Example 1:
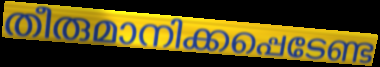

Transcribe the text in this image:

തീരുമാനിക്കപ്പെടേണ്ട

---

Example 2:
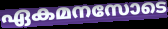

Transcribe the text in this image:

ഏകമനസോടെ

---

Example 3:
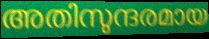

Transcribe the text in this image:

അതിസുന്ദരമായ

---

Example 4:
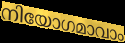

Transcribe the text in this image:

നിയോഗമാവാം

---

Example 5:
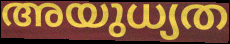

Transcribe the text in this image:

അയുധ്യത